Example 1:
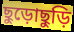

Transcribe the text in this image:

ছুড়োছুড়ি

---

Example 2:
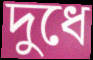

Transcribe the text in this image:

দুধে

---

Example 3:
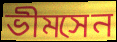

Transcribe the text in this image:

ভীমসেন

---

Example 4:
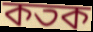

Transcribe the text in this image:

কতক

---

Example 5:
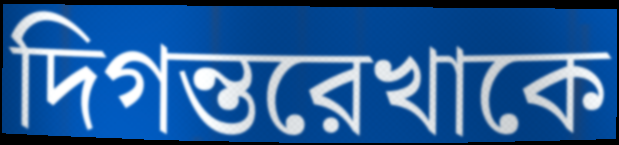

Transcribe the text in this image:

দিগন্তরেখাকে